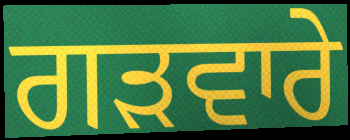
ਗੜਵਾਰੇ